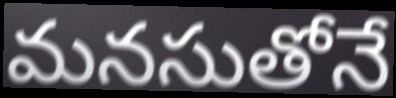
మనసుతోనే